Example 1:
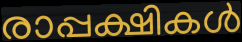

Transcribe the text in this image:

രാപ്പക്ഷികൾ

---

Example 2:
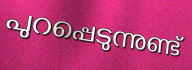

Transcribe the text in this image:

പുറപ്പെടുന്നുണ്ട്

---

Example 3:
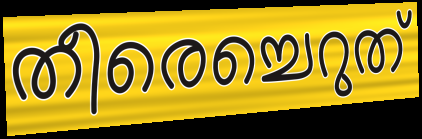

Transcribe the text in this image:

തീരെച്ചെറുത്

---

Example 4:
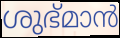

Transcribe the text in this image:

ശുഭ്മാൻ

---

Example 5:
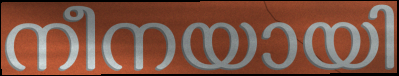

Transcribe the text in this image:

നീനയായി